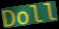
Doll